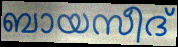
ബായസീദ്